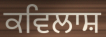
ਕਵਿਲਾਸ਼